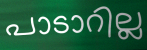
പാടാറില്ല